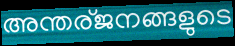
അന്തര്ജനങ്ങളുടെ